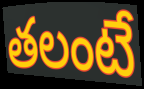
తలంటే